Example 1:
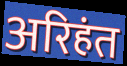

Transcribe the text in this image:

अरिहंत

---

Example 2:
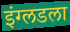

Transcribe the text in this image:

इंग्लडला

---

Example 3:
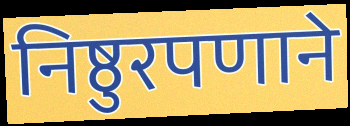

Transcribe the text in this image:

निष्ठुरपणाने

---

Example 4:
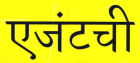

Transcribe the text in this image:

एजंटची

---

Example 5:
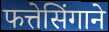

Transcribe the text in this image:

फत्तेसिंगाने